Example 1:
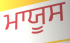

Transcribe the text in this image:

ਮਾਯੂਸ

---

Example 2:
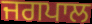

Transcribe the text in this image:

ਜਗਪਾਲ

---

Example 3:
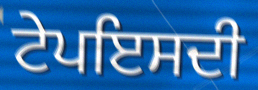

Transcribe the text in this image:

ਟੇਪਇਸਦੀ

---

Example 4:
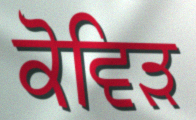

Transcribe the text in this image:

ਕੋਵਿਡ਼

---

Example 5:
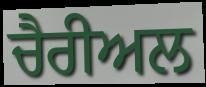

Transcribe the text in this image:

ਚੈਰੀਅਲ